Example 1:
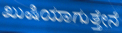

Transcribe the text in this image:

ಖುಷಿಯಾಗುತ್ತೇನೆ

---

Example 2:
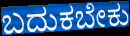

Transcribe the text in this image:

ಬದುಕಬೇಕು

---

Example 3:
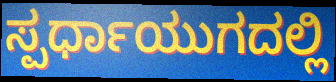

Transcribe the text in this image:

ಸ್ಪರ್ಧಾಯುಗದಲ್ಲಿ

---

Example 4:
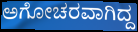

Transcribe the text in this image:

ಅಗೋಚರವಾಗಿದ್ದ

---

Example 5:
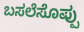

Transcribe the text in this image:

ಬಸಲೆಸೊಪ್ಪು